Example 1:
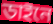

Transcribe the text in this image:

ডাইনে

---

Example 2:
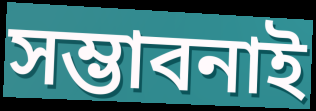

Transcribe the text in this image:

সম্ভাবনাই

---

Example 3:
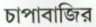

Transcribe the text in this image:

চাপাবাজির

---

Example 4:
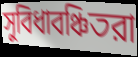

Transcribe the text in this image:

সুবিধাবঞ্চিতরা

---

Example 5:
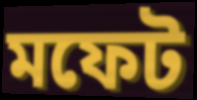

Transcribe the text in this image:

মফেট